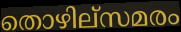
തൊഴില്സമരം